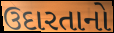
ઉદારતાનો